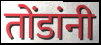
तोंडांनी